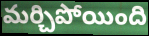
మర్చిపోయింది